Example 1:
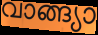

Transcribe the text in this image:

വാങ്ങ്യാ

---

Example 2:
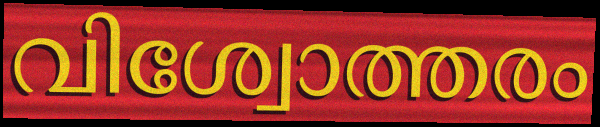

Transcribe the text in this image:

വിശ്വോത്തരം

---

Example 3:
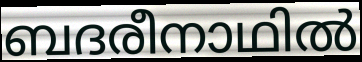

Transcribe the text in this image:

ബദരീനാഥിൽ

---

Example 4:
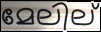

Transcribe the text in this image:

മേലില്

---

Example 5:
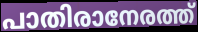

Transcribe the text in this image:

പാതിരാനേരത്ത്